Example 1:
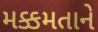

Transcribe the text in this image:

મક્કમતાને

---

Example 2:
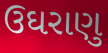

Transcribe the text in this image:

ઉઘરાણુ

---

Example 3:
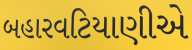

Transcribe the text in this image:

બહારવટિયાણીએ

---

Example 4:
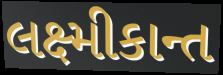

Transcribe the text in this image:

લક્ષ્મીકાન્ત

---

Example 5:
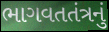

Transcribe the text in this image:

ભાગવતતંત્રનું